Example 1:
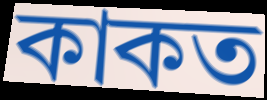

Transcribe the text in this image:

কাকত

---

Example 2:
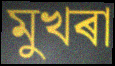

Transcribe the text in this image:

মুখৰা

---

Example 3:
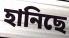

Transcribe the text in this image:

হানিছে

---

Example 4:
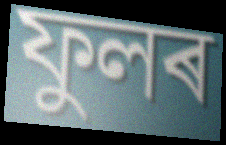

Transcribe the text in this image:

ফুলৰ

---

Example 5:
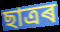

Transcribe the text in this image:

ছাত্ৰৰ